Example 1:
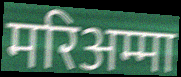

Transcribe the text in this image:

मरिअम्मा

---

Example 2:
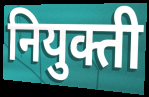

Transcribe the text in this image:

नियुक्ती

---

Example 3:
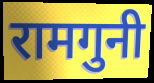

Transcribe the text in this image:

रामगुनी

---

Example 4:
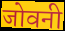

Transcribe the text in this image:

जोवनी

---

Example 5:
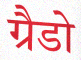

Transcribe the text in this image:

ग्रैडो